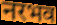
नरभव